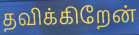
தவிக்கிறேன்